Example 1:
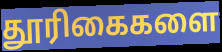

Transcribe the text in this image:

தூரிகைகளை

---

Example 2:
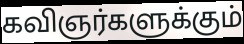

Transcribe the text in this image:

கவிஞர்களுக்கும்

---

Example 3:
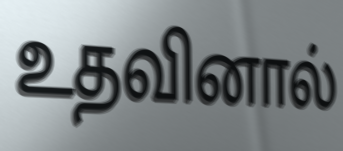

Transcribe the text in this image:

உதவினால்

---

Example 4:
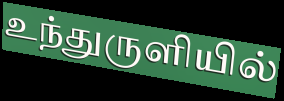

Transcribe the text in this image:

உந்துருளியில்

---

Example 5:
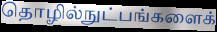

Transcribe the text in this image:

தொழில்நுட்பங்களைக்